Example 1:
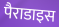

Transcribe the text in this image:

पैराडाइस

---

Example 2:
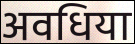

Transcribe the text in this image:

अवधिया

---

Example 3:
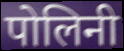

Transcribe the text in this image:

पोलिनी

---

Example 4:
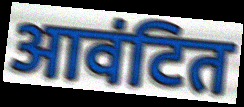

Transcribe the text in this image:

आवंटित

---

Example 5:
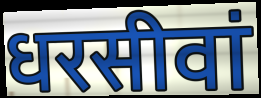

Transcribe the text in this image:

धरसीवां